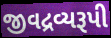
જીવદ્રવ્યરૂપી